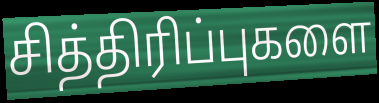
சித்திரிப்புகளை